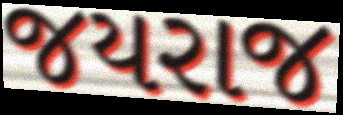
જયરાજ